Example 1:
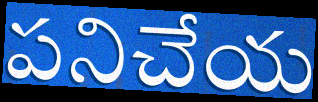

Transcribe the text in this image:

పనిచేయ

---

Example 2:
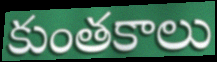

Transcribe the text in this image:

కుంతకాలు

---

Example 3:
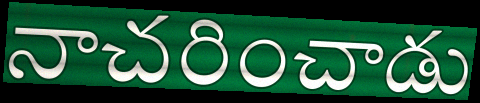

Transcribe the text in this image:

నాచరించాడు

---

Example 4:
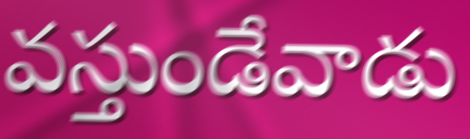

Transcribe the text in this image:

వస్తుండేవాడు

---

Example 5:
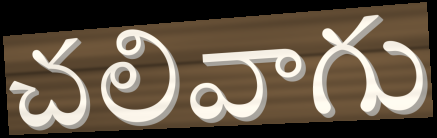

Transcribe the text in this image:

చలివాగు